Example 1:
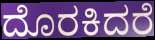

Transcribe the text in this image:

ದೊರಕಿದರೆ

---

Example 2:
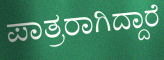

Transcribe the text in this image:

ಪಾತ್ರರಾಗಿದ್ದಾರೆ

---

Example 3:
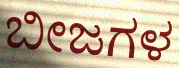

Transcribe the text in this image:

ಬೀಜಗಳ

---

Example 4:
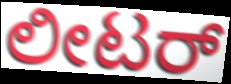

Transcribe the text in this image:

ಲೀಟರ್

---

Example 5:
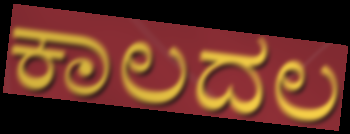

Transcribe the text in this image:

ಕಾಲದಲ